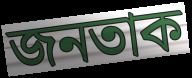
জনতাক